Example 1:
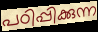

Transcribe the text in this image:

പഠിപ്പിക്കുന്ന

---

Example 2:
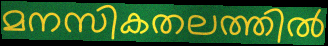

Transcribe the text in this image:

മനസികതലത്തിൽ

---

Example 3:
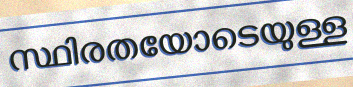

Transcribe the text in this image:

സ്ഥിരതയോടെയുള്ള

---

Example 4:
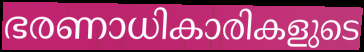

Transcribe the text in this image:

ഭരണാധികാരികളുടെ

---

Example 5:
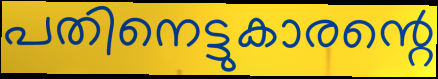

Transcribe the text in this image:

പതിനെട്ടുകാരന്റെ